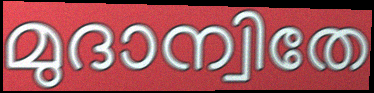
മുദാന്വിതേ